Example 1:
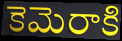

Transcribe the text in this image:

కెమెరాకి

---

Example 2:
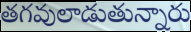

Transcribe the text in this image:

తగవులాడుతున్నారు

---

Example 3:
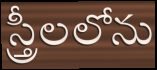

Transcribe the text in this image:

స్త్రీలలోను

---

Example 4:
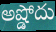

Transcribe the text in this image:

అష్డోదు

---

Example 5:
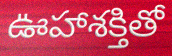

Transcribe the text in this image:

ఊహాశక్తితో